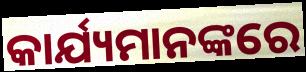
କାର୍ଯ୍ୟମାନଙ୍କରେ